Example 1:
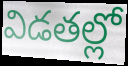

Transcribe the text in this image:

విడతల్లో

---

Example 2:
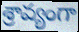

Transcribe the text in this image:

శ్రావ్యంగా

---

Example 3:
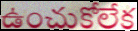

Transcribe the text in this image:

ఉంచుకోలేక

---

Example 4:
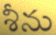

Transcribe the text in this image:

శీను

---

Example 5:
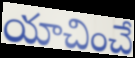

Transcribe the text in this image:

యాచించే